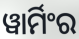
ୱାର୍ମିଂର